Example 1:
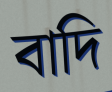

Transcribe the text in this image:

বাদি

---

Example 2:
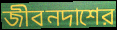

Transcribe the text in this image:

জীবনদাশের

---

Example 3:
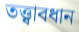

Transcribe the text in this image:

তত্ত্বাবধান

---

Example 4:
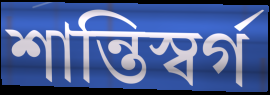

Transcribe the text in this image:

শান্তিস্বর্গ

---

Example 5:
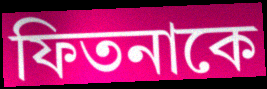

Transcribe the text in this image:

ফিতনাকে